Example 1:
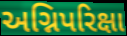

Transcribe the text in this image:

અગ્નિપરિક્ષા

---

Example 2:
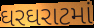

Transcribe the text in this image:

ઘરઘરાટમાં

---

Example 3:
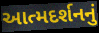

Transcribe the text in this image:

આત્મદર્શનનું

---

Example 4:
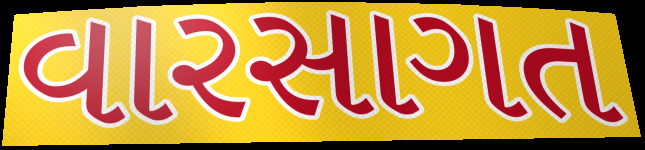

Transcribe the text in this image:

વારસાગત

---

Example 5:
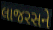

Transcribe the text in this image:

લાજરસને